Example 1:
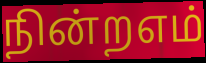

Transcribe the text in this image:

நின்றஎம்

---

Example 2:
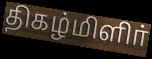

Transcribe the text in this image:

திகழ்மிளிர்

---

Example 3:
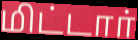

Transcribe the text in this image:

மிட்டார்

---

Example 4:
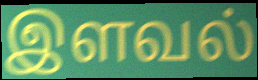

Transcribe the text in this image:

இளவல்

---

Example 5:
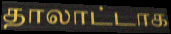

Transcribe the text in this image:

தாலாட்டாக